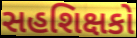
સહશિક્ષકો